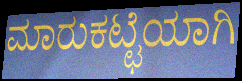
ಮಾರುಕಟ್ಟೆಯಾಗಿ